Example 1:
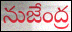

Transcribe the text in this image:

నుజేంద్ర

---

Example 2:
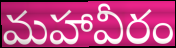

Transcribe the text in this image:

మహావీరం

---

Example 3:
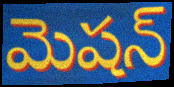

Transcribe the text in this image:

మెషన్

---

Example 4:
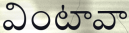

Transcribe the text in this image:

వింటావా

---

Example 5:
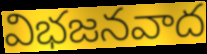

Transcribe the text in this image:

విభజనవాద